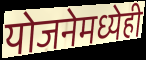
योजनेमध्येही